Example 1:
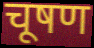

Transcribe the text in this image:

चूषण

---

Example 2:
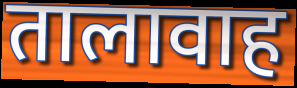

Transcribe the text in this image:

तालावाह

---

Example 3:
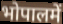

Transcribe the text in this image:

भोपालमें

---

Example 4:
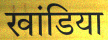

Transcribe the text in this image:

खांडिया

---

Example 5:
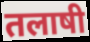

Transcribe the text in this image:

तलाषी